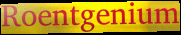
Roentgenium